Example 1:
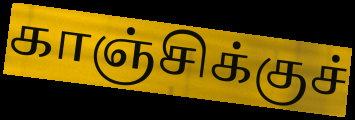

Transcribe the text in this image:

காஞ்சிக்குச்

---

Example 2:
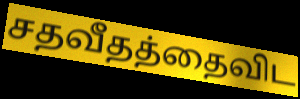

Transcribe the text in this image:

சதவீதத்தைவிட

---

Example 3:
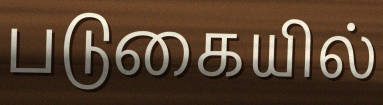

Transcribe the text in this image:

படுகையில்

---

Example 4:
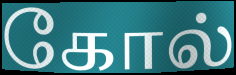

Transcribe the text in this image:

கோல்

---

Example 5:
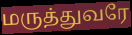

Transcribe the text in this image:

மருத்துவரே